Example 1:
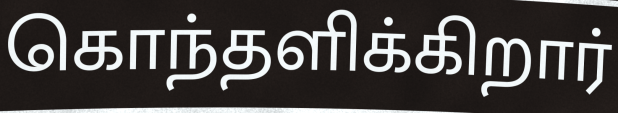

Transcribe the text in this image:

கொந்தளிக்கிறார்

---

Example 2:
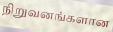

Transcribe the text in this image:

நிறுவனங்களான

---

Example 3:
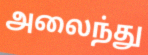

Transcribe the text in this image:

அலைந்து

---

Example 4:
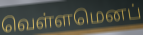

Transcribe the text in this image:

வெள்ளமெனப்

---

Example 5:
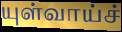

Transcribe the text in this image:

யுள்வாய்ச்